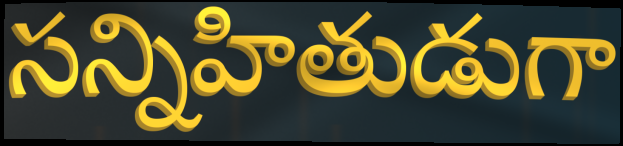
సన్నిహితుడుగా